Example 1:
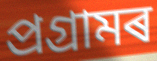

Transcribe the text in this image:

প্ৰগ্ৰামৰ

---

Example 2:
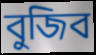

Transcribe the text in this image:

বুজিব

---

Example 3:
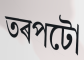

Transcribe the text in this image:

তৰপটো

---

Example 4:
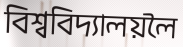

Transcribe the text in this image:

বিশ্ববিদ্যালয়লৈ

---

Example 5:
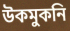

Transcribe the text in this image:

উকমুকনি